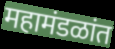
महामंडळांत